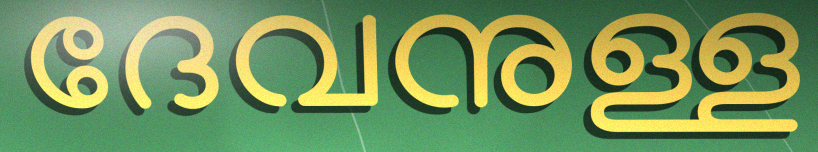
ദേവനുള്ള